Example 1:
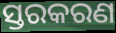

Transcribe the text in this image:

ସ୍ତରକରଣ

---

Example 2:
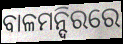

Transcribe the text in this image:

ବାଳମନ୍ଦିରରେ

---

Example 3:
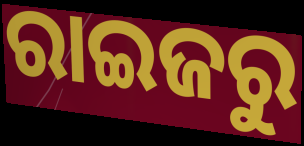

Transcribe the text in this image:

ରାଇଜରୁ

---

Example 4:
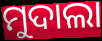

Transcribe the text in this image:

ମୁଦାଲା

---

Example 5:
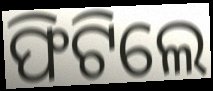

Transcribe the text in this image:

ଫିଟିଲେ